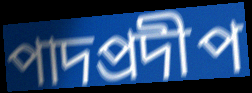
পাদপ্রদীপ